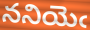
ననియెఁ